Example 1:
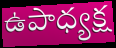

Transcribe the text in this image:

ఉపాధ్యక్ష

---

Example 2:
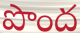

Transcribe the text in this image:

పొంద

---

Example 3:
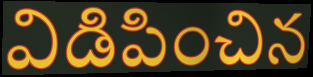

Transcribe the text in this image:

విడిపించిన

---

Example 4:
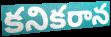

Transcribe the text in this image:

కనికరాన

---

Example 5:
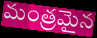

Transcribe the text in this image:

మంత్రమైన